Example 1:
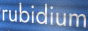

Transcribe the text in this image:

rubidium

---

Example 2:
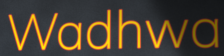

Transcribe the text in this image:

Wadhwa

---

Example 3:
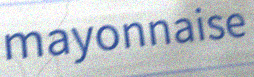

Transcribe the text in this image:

mayonnaise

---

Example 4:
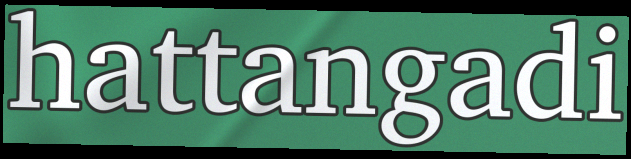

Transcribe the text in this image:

hattangadi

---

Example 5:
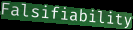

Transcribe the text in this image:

Falsifiability